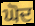
ਘੋਦ